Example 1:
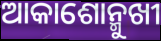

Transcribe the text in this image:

ଆକାଶୋନ୍ମୁଖୀ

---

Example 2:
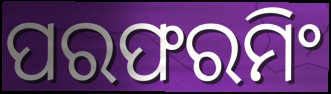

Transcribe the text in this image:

ପରଫରମିଂ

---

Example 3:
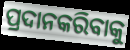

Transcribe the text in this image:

ପ୍ରଦାନକରିବାକୁ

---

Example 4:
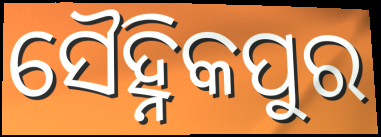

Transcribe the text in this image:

ସୈହ୍ନିକପୁର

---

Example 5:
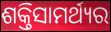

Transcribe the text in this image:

ଶକ୍ତିସାମର୍ଥ୍ୟର